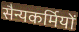
सैन्यकर्मियों